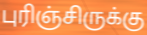
புரிஞ்சிருக்கு